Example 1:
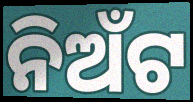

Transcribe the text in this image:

ନିଅଁଟ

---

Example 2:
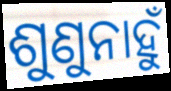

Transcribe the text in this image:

ଶୁଣୁନାହୁଁ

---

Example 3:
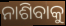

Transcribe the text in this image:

ନାଶିବାକୁ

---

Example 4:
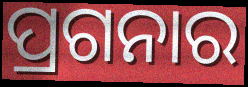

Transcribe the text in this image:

ପ୍ରଗନାର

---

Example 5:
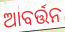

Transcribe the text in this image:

ଆବର୍ତ୍ତନ